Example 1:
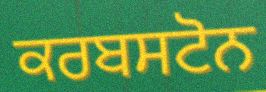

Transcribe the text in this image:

ਕਰਬਸਟੋਨ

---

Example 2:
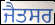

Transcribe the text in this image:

ਜੈਤਸਰ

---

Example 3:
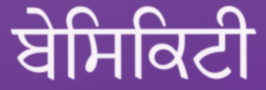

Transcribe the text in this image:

ਬੇਸਿਕਿਟੀ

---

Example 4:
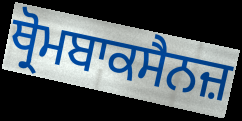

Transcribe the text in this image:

ਥ੍ਰੋਮਬਾਕਸੈਨਜ਼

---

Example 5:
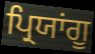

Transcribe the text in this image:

ਪ੍ਰਿਯਾਂਗੂ